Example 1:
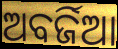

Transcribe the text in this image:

ଅବର୍ଜିଆ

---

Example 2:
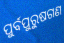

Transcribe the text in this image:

ପୁର୍ବପୁରୁଷଗଣ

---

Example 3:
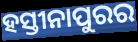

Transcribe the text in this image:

ହସ୍ତୀନାପୁରର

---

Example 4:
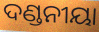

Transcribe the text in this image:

ଦଣ୍ଡନୀୟା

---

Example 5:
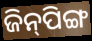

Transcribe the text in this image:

ଜିନ୍‌ପିଙ୍ଗ